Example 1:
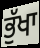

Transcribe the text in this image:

ਭੁੱਖਾ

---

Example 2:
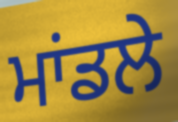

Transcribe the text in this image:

ਮਾਂਡਲੇ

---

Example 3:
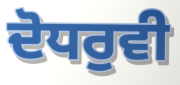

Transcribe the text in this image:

ਦੋਧਰੁਵੀ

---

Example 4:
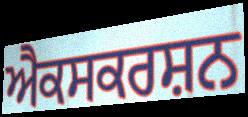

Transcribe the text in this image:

ਐਕਸਕਰਸ਼ਨ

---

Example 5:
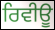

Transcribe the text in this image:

ਰਿਵੀਊ